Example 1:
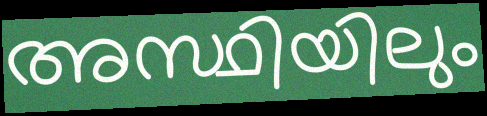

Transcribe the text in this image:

അസ്ഥിയിലും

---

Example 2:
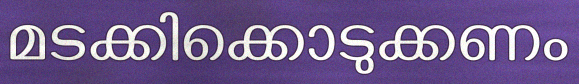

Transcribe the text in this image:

മടക്കിക്കൊടുക്കണം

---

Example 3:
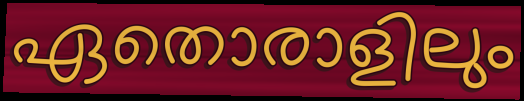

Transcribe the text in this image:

ഏതൊരാളിലും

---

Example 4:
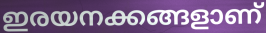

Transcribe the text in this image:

ഇരയനക്കങ്ങളാണ്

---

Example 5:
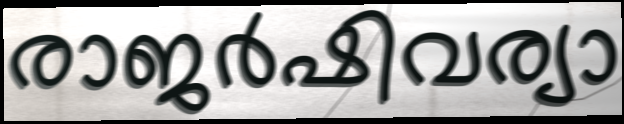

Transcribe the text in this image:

രാജർഷിവര്യാ